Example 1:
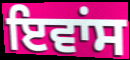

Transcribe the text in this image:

ਇਵਾਂਸ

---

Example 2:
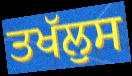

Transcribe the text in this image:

ਤਖੱਲੁਸ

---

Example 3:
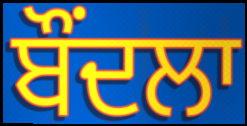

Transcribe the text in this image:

ਬੌਂਦਲਾ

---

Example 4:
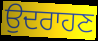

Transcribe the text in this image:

ਉਦਰਾਹਣ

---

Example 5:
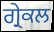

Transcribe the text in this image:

ਗ੍ਰੇਕਲ